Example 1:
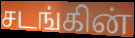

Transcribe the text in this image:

சடங்கின்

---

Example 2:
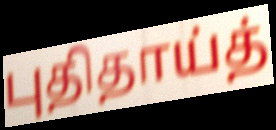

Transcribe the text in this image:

புதிதாய்த்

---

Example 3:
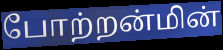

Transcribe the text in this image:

போற்றன்மின்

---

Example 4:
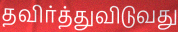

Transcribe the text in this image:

தவிர்த்துவிடுவது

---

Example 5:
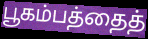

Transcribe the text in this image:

பூகம்பத்தைத்